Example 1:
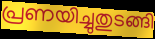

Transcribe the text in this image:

പ്രണയിച്ചുതുടങ്ങി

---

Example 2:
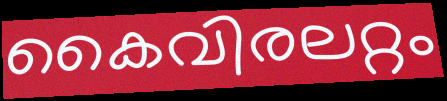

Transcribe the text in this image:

കൈവിരലറ്റം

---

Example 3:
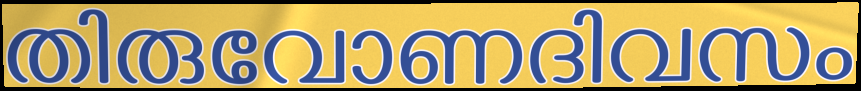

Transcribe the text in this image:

തിരുവോണദിവസം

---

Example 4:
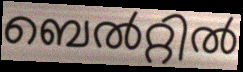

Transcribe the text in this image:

ബെൽറ്റിൽ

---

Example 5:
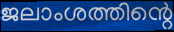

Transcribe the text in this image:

ജലാംശത്തിന്റെ